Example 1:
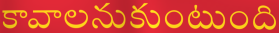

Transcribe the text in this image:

కావాలనుకుంటుంది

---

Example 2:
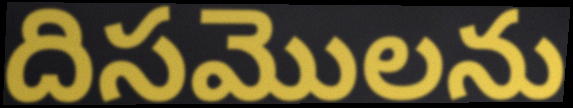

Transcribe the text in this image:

దిసమొలను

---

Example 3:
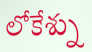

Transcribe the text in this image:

లోకేశ్ను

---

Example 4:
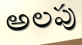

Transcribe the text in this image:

అలపు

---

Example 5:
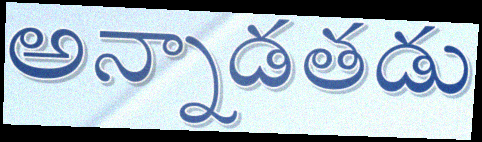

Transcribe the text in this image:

అన్నాడతడు